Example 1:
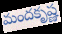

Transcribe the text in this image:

మందకృష్ణ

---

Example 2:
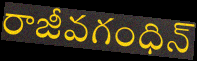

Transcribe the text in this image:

రాజీవగంధిన్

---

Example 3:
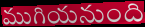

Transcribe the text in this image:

ముగియనుంది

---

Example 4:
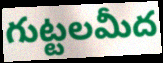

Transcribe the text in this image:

గుట్టలమీద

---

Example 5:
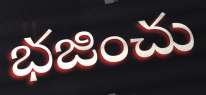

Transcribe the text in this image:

భజించు